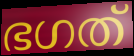
ഭഗത്